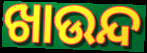
ଖାଉନ୍ଦ